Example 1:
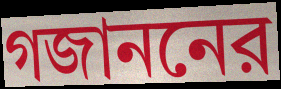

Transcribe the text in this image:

গজাননের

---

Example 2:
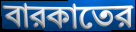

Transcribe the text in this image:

বারকাতের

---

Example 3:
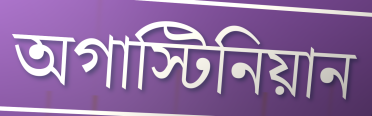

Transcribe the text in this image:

অগাস্টিনিয়ান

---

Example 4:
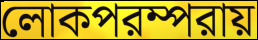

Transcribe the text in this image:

লোকপরম্পরায়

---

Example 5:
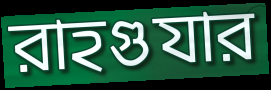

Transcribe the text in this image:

রাহগুযার